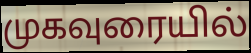
முகவுரையில்